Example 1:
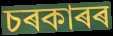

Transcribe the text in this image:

চৰকাৰৰ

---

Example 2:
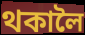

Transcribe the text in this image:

থকালৈ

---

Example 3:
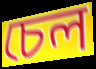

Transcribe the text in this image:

চেল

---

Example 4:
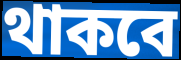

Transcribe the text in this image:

থাকবে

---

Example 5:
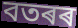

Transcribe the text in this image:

বতৰৰ